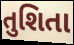
તુશિતા